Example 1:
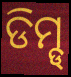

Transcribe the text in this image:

ଡିମ୍ଡ୍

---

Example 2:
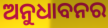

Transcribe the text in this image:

ଅନୁଧାବନର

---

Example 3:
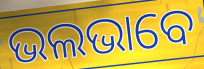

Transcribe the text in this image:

ଭଲଭାବେ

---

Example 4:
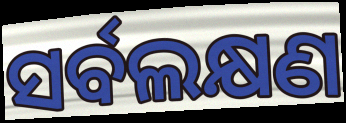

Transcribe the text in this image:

ସର୍ବଲକ୍ଷଣ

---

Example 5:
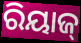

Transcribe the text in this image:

ରିୟାଜ୍